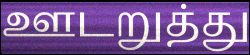
ஊடறுத்து